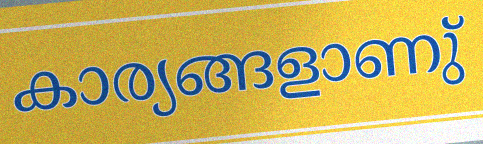
കാര്യങ്ങളാണു്